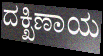
ದಕ್ಖಿಣಾಯ